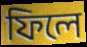
ফিলে